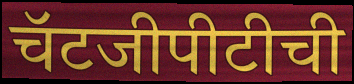
चॅटजीपीटीची